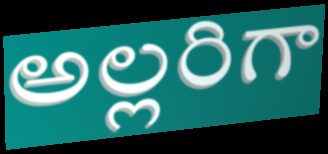
అల్లరిగా